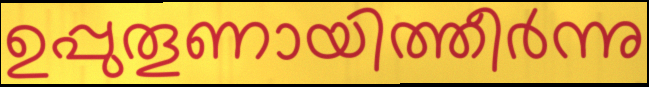
ഉപ്പുതൂണായിത്തീർന്നു